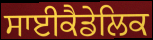
ਸਾਈਕੈਡੇਲਿਕ